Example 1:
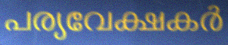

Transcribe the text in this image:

പര്യവേക്ഷകർ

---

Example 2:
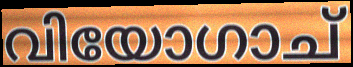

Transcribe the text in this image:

വിയോഗാച്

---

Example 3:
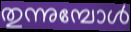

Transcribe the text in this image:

തുന്നുമ്പോൾ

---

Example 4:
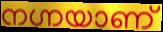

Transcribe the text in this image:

നഗ്നയാണ്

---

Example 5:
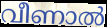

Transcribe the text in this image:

വീണാൽ